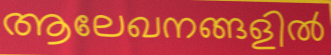
ആലേഖനങ്ങളിൽ